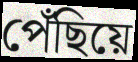
পেঁছিয়ে